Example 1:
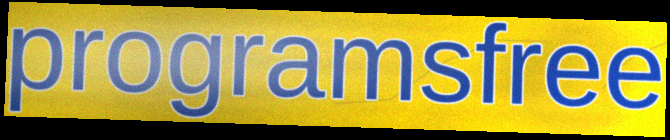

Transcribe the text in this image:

programsfree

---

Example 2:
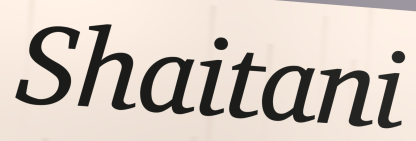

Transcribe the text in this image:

Shaitani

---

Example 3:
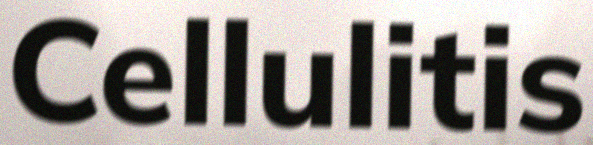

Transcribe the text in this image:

Cellulitis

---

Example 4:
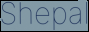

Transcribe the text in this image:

Shepal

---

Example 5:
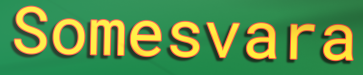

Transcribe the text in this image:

Somesvara